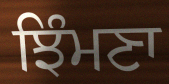
ਝਿੰਮਣਾ